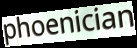
phoenician